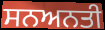
ਸਨਅਨਤੀ